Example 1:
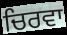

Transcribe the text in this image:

ਚਿਰਵਾ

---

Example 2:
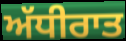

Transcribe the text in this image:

ਅੱਧੀਰਾਤ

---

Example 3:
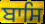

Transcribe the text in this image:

ਬਾਸਿ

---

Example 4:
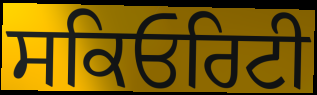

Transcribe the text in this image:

ਸਕਿਓਰਿਟੀ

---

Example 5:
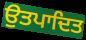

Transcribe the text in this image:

ਉਤਪਾਦਿਤ